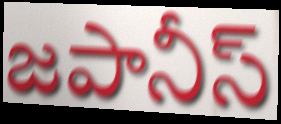
జపానీస్